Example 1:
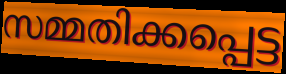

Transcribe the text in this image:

സമ്മതിക്കപ്പെട്ട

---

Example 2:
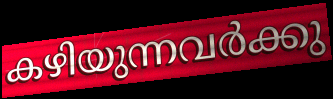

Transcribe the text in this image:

കഴിയുന്നവർക്കു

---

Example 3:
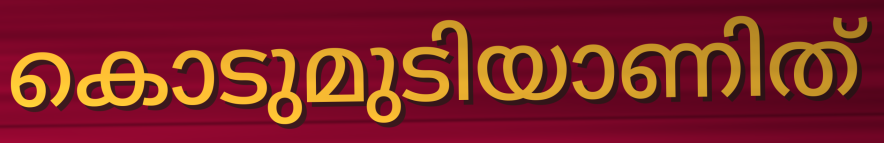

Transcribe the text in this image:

കൊടുമുടിയാണിത്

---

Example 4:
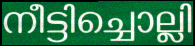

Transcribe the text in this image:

നീട്ടിച്ചൊല്ലി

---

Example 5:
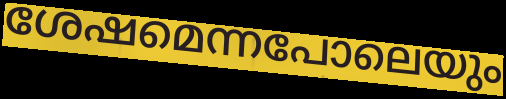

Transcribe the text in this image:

ശേഷമെന്നപോലെയും